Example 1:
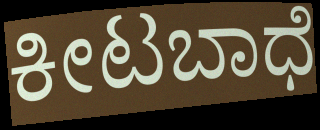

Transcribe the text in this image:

ಕೀಟಬಾಧೆ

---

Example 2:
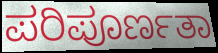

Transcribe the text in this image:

ಪರಿಪೂರ್ಣತಾ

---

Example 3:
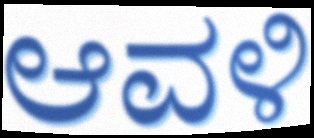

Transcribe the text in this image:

ಆವಳಿ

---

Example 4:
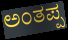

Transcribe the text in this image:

ಅಂತಪ್ಪ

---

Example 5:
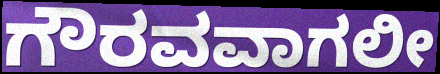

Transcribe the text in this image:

ಗೌರವವಾಗಲೀ